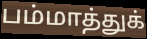
பம்மாத்துக்